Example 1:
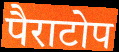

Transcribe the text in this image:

पैराटोप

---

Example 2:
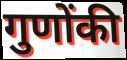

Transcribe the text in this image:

गुणोंकी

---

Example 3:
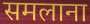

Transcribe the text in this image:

समलाना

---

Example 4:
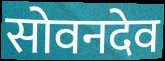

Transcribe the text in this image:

सोवनदेव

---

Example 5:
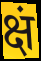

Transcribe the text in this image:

क्षं